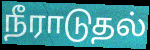
நீராடுதல்